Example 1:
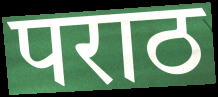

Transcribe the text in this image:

पराठ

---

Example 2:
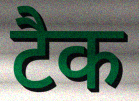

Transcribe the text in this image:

टैक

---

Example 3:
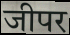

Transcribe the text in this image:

जीपर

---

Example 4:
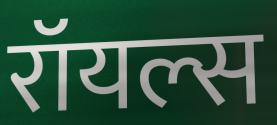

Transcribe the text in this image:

रॉयल्‍स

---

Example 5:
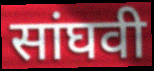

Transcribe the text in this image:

सांघवी